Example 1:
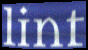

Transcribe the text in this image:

lint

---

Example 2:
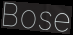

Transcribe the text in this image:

Bose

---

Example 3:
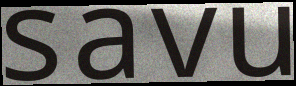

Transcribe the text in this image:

savu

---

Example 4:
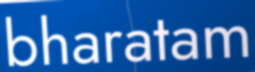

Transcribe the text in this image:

bharatam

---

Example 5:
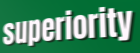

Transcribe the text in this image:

superiority